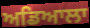
ਅਡਿਆਲਾ